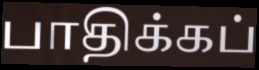
பாதிக்கப்